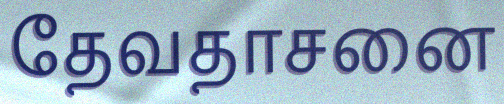
தேவதாசனை